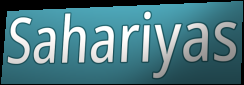
Sahariyas